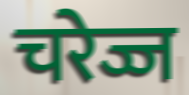
चरेज्ज